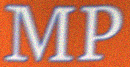
MP